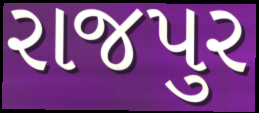
રાજપુર